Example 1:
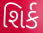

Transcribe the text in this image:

શિર્ક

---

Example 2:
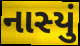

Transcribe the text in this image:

નાસ્યું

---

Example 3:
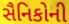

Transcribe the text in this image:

સૈનિકોની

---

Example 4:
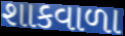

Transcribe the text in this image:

શાકવાળા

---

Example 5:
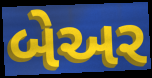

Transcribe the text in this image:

બેઅર